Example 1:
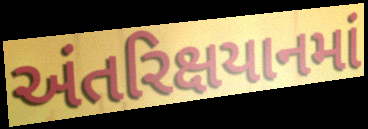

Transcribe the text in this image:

અંતરિક્ષયાનમાં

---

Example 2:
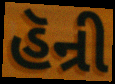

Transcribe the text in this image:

હૅન્રી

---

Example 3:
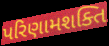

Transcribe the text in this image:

પરિણામશક્તિ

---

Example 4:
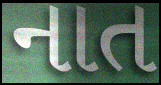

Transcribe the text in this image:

નાત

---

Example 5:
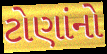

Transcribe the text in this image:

ટોણાંનો